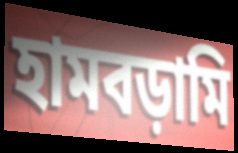
হামবড়ামি